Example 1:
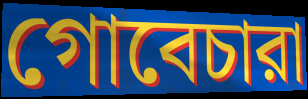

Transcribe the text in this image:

গোবেচারা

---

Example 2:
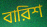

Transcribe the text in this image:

বারিশ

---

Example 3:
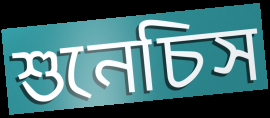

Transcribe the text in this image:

শুনেচিস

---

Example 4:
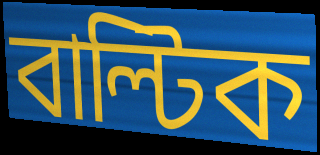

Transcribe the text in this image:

বাল্টিক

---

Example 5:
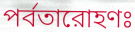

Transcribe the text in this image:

পর্বতারোহণঃ